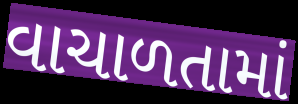
વાચાળતામાં